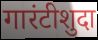
गारंटीशुदा